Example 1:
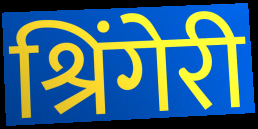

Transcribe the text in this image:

श्रिंगेरी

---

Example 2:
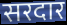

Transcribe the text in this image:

सरदार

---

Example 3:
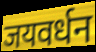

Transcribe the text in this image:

जयवर्धन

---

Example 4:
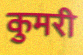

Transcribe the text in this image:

कुमरी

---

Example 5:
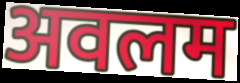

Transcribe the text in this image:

अवलम